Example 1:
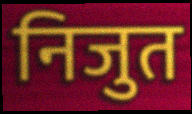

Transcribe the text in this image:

निजुत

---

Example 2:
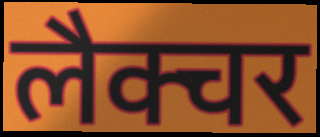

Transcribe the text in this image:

लैक्चर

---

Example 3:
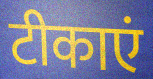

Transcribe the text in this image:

टीकाएं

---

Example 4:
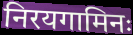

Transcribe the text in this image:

निरयगामिनः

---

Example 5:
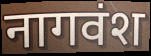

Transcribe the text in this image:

नागवंश